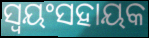
ସ୍ଵୟଂସହାୟକ